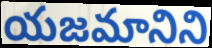
యజమానిని